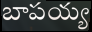
బాపయ్య